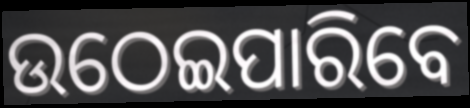
ଉଠେଇପାରିବେ